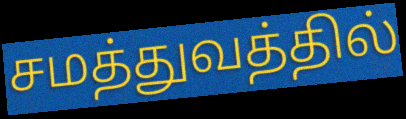
சமத்துவத்தில்